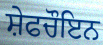
ਸ਼ੇਫਚੌਇਨ